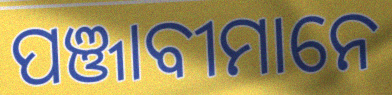
ପଞ୍ଜାବୀମାନେ